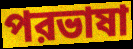
পরভাষা